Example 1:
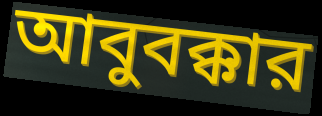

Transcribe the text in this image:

আবুবক্কার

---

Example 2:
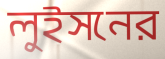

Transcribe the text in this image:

লুইসনের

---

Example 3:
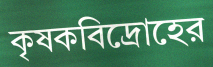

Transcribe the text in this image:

কৃষকবিদ্রোহের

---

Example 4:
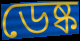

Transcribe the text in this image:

ডেষ্ক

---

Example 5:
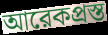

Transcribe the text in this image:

আরেকপ্রস্ত